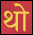
थो